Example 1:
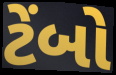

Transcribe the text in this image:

ટેંબો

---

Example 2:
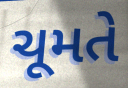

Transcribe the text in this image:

ચૂમતે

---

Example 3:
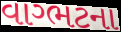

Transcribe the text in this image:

વાગ્ભટના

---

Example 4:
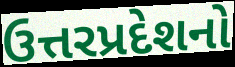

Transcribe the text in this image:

ઉત્તરપ્રદેશનો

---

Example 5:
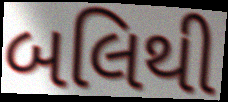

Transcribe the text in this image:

બલિથી